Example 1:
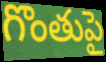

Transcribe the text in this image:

గొంతుపై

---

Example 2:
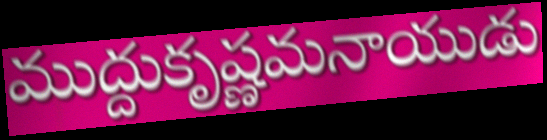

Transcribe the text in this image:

ముద్దుకృష్ణమనాయుడు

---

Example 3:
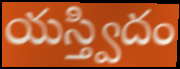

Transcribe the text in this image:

యస్త్విదం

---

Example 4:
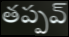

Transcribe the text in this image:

తప్పవ్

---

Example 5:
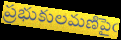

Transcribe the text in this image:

ప్రభుకులమణిపైఁ